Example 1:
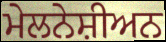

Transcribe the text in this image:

ਮੇਲਨੇਸ਼ੀਅਨ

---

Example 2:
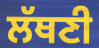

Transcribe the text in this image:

ਲੱਥਣੀ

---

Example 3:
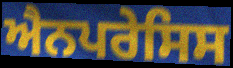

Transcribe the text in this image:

ਐਨਪਰੇਸਿਸ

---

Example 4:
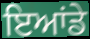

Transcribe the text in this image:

ਇਆਂਡੇ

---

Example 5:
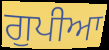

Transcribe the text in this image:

ਗੁਪੀਆ